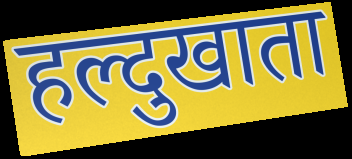
हल्दुखाता